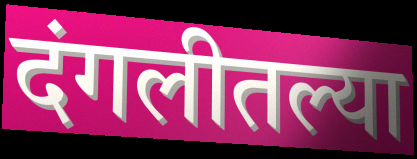
दंगलीतल्या